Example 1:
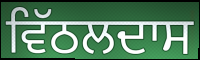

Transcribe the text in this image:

ਵਿੱਠਲਦਾਸ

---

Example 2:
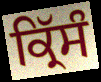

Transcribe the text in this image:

ਕ੍ਰਿੱਸੰ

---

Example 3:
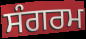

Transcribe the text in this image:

ਸੰਗਰਮ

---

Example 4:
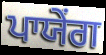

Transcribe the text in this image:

ਪਾਯੇਂਗ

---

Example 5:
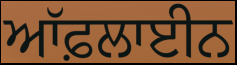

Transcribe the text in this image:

ਆੱਫ਼ਲਾਈਨ